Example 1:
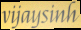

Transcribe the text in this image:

vijaysinh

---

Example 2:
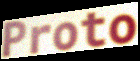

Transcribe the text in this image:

Proto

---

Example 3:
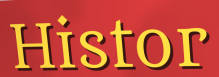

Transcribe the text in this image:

Histor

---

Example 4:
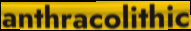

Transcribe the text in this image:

anthracolithic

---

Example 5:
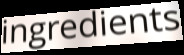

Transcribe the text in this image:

ingredients